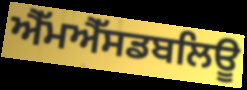
ਐੱਮਐੱਸਡਬਲਿਊ